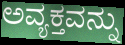
ಅವ್ಯಕ್ತವನ್ನು